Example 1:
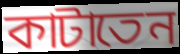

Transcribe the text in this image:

কাটাতেন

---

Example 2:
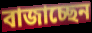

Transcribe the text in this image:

বাজাচ্ছেন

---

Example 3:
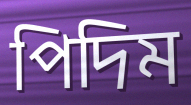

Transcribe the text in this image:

পিদিম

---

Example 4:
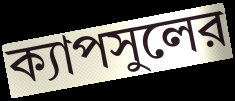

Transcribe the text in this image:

ক্যাপসুলের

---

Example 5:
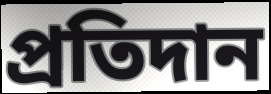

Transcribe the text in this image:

প্রতিদান